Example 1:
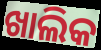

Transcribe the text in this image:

ଖାଲିକ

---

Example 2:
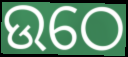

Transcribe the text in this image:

ଉଠେ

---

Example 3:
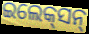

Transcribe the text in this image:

ଇଲେକ୍‌ସନ୍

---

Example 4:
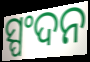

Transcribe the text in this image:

ସ୍ପଂଦନ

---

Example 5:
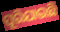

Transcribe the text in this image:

ପୂରିଯାଉଛି